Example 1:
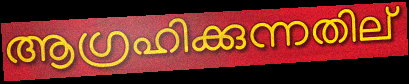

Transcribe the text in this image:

ആഗ്രഹിക്കുന്നതില്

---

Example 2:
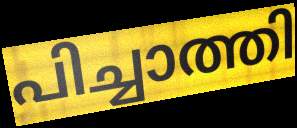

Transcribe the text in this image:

പിച്ചാത്തി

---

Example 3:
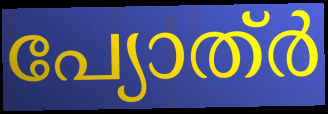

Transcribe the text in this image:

പ്യോത്ർ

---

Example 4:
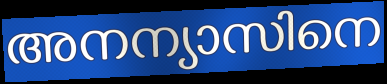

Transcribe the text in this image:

അനന്യാസിനെ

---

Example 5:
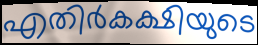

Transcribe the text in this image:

എതിർകക്ഷിയുടെ